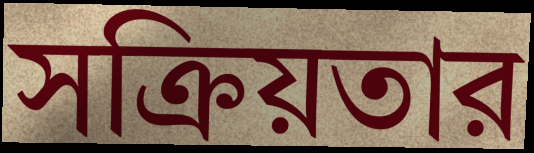
সক্রিয়তার